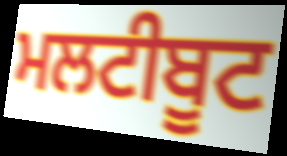
ਮਲਟੀਬੂਟ